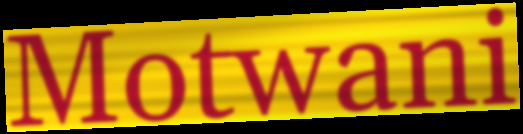
Motwani